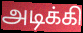
அடிக்கி